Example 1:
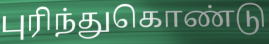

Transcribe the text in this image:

புரிந்துகொண்டு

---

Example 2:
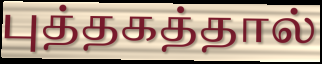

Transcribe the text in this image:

புத்தகத்தால்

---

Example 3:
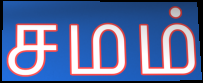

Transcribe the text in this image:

சமம்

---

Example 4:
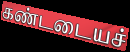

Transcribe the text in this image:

கண்டடையச்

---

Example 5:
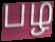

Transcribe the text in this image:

பழ